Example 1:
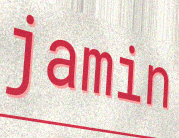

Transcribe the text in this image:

jamin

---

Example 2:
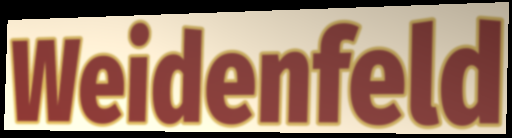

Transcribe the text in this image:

Weidenfeld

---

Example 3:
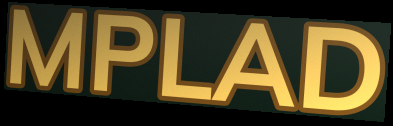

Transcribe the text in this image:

MPLAD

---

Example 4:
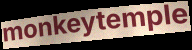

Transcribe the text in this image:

monkeytemple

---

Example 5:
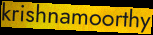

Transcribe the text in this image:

krishnamoorthy